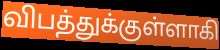
விபத்துக்குள்ளாகி